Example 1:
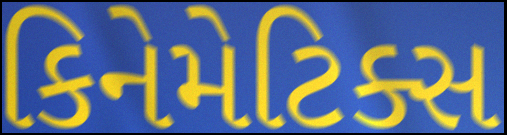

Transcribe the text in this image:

કિનેમેટિક્સ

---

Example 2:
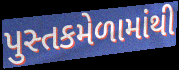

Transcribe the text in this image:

પુસ્તકમેળામાંથી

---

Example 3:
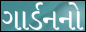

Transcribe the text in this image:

ગાર્ડનનો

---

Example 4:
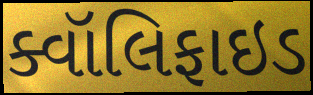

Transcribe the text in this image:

ક્વૉલિફાઇડ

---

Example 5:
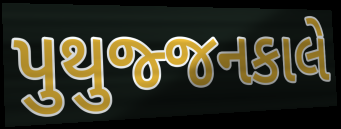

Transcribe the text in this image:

પુથુજ્જનકાલે